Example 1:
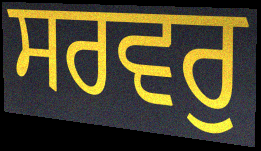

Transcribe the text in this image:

ਸਰਵਰੁ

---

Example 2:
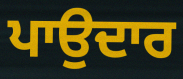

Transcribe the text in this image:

ਪਾਉਦਾਰ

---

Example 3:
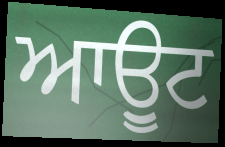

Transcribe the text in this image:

ਆਉੂਟ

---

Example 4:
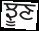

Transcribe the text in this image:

ਝੂਣ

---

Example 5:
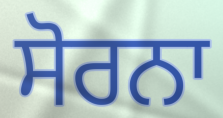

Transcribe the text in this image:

ਸੋਰਨਾ